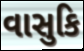
વાસુકિ